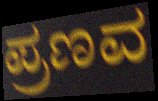
ಪ್ರಣವ